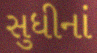
સુધીનાં